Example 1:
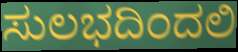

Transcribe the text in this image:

ಸುಲಭದಿಂದಲಿ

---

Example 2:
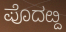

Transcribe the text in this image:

ಪೊದೞ್ದ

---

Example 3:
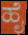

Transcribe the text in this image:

ಹೈ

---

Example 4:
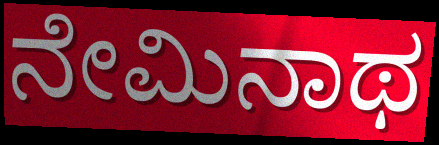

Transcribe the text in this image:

ನೇಮಿನಾಥ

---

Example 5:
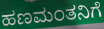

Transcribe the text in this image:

ಹಣಮಂತನಿಗೆ